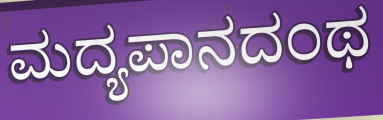
ಮದ್ಯಪಾನದಂಥ